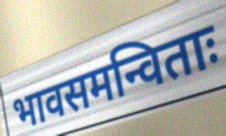
भावसमन्विताः